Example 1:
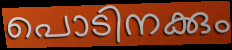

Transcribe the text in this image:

പൊടിനക്കും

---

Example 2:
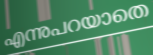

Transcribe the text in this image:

എന്നുപറയാതെ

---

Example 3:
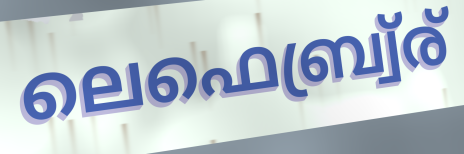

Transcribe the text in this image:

ലെഫെബ്ര്വ്ര്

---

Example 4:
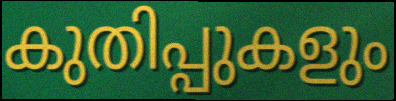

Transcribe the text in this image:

കുതിപ്പുകളും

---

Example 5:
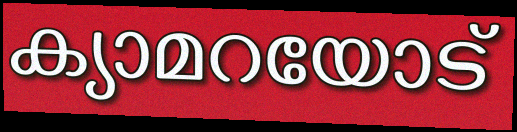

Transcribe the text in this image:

ക്യാമറയോട്